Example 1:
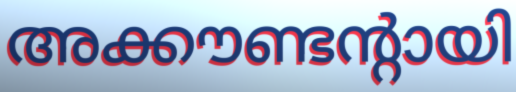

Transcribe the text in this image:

അക്കൗണ്ടന്റായി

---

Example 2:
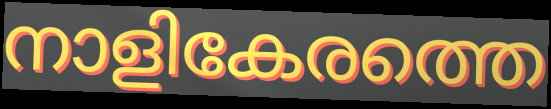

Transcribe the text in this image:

നാളികേരത്തെ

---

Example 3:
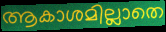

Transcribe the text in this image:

ആകാശമില്ലാതെ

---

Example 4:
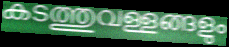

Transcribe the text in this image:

കടത്തുവള്ളങ്ങളും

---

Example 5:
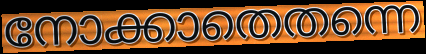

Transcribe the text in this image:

നോക്കാതെതന്നെ